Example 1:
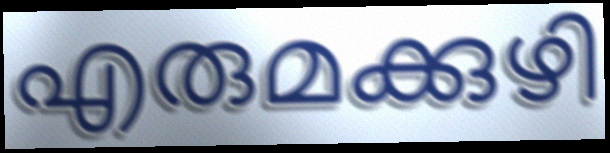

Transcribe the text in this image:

എരുമക്കുഴി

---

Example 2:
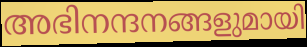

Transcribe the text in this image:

അഭിനന്ദനങ്ങളുമായി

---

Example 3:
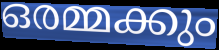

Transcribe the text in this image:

ഒരമ്മക്കും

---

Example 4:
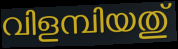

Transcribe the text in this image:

വിളമ്പിയതു്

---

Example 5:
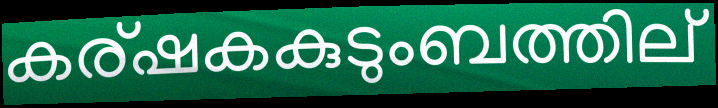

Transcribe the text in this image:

കര്ഷകകുടുംബത്തില്